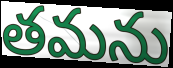
తమను